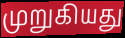
முறுகியது